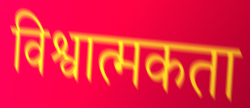
विश्वात्मकता